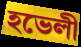
হভেলী